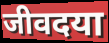
जीवदया